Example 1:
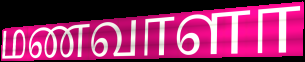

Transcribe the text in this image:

மணவாளா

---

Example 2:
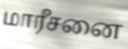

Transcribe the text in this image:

மாரீசனை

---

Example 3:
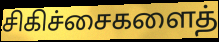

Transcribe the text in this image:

சிகிச்சைகளைத்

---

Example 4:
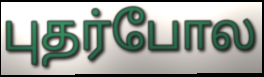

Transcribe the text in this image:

புதர்போல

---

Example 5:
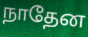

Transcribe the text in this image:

நாதேன